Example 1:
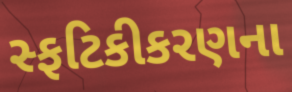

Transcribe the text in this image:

સ્ફટિકીકરણના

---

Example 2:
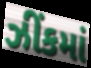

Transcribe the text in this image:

ઝીંકમાં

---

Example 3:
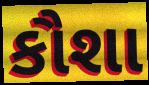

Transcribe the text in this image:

કૌશા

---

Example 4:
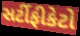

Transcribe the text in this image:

સર્ટીફીકેટો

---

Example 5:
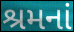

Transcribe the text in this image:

શ્રમનાં